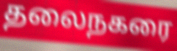
தலைநகரை